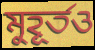
মুহূর্তও